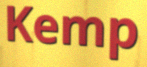
Kemp